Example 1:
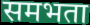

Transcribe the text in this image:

समभता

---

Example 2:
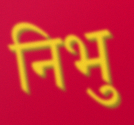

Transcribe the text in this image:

निभु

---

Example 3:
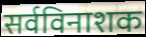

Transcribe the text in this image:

सर्वविनाशक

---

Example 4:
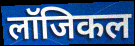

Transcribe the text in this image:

लॉजिकल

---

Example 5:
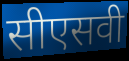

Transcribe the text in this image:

सीएसवी